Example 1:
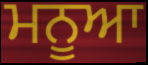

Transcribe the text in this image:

ਮਨੂਆ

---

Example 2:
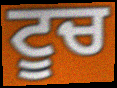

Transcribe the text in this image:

ਟੂਚ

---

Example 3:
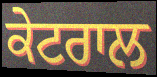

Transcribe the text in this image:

ਕੇਟਰਾਲ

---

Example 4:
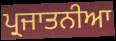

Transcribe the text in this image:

ਪ੍ਰਜਾਤਨੀਆ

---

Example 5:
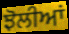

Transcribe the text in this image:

ਝੋਲੀਆਂ